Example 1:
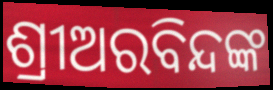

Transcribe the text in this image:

ଶ୍ରୀଅରବିନ୍ଦଙ୍କ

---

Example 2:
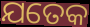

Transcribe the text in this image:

ଯତେକ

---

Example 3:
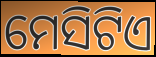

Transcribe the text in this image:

ମେସିଟିଏ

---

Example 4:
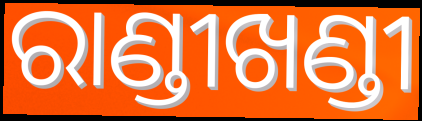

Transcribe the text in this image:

ରାଣ୍ଡୀଖଣ୍ଡୀ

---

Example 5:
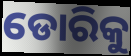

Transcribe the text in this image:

ଡୋରିକୁ